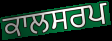
ਕਾਲਸਰਪ